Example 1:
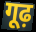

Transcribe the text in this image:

गूढ़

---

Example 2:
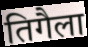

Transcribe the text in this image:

तिगैला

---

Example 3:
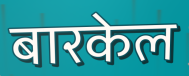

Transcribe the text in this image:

बारकेल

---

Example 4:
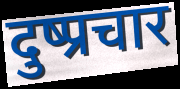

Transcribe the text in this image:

दुष्प्रचार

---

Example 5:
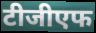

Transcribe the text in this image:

टीजीएफ